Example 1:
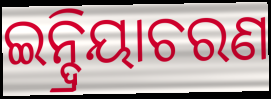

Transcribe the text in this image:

ଇନ୍ଦ୍ରିୟାଚରଣ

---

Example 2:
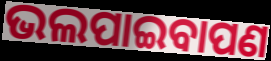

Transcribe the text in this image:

ଭଲପାଇବାପଣ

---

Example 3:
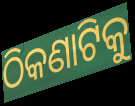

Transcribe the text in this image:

ଠିକଣାଟିକୁ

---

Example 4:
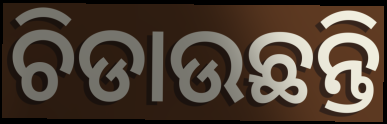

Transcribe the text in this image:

ଚିଡାଉଛନ୍ତି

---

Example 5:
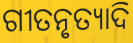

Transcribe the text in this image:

ଗୀତନୃତ୍ୟାଦି